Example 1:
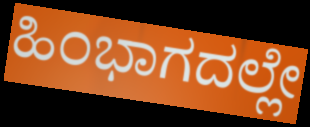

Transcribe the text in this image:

ಹಿಂಭಾಗದಲ್ಲೇ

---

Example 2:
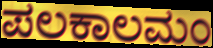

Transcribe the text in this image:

ಪಲಕಾಲಮಂ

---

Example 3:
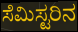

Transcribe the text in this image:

ಸೆಮಿಸ್ಟರಿನ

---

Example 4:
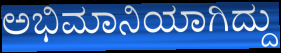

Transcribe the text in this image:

ಅಭಿಮಾನಿಯಾಗಿದ್ದು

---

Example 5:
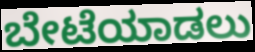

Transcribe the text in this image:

ಬೇಟೆಯಾಡಲು